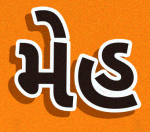
મેહ